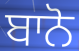
ਬਾਨੋ